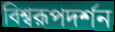
বিশ্বরূপদর্শন